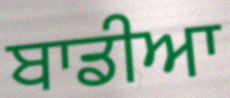
ਬਾਡੀਆ